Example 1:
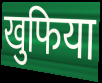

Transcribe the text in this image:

खुफिया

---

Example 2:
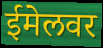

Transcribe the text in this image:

ईमेलवर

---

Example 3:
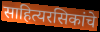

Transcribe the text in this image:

साहित्यरसिकांचे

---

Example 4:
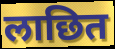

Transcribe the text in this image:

लाछित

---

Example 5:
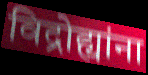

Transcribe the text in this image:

विद्रोह्यांना